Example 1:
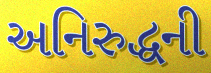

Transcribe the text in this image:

અનિરુદ્ધની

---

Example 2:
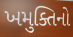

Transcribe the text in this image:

ખમુક્તિનો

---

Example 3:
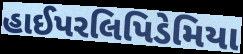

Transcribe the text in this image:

હાઈપરલિપિડેમિયા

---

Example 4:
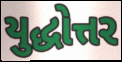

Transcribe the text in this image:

યુદ્ધોત્તર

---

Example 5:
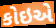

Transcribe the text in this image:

કોઇએ